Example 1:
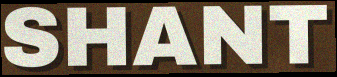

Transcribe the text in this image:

SHANT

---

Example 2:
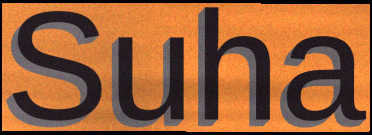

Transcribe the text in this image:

Suha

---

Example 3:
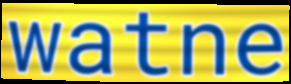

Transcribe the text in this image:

watne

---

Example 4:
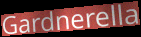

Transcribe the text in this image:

Gardnerella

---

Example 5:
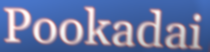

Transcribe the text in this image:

Pookadai